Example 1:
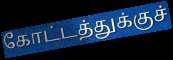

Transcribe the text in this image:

கோட்டத்துக்குச்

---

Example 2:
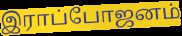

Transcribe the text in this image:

இராப்போஜனம்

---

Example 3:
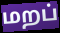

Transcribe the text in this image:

மறப்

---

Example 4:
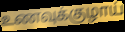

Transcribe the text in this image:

உணவுக்குழாய்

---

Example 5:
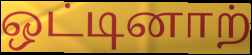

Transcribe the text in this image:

ஒட்டினாற்